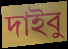
দাইবু